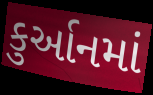
કુર્આનમાં